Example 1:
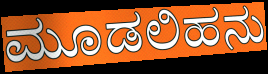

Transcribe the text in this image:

ಮೂಡಲಿಹನು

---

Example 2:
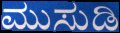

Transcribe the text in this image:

ಮುಸುಡಿ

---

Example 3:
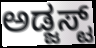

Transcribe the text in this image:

ಅಡ್ಜಸ್ಟ್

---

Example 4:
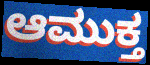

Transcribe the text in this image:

ಆಮುಕ್ತ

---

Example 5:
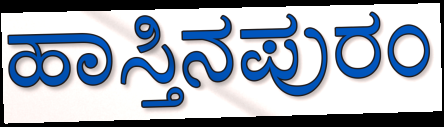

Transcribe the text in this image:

ಹಾಸ್ತಿನಪುರಂ